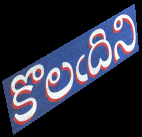
కొలఁదిని